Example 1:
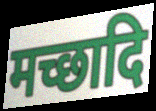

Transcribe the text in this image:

मच्छादि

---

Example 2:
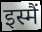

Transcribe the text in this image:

इस्मैं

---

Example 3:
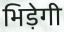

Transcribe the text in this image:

भिड़ेगी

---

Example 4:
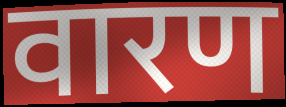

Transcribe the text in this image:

वारण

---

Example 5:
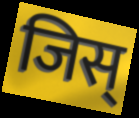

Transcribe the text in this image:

जिस्